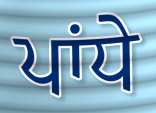
ਪਾਂਧੇ